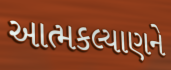
આત્મકલ્યાણને